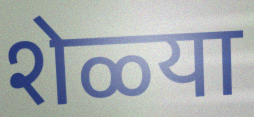
शेळ्या